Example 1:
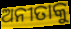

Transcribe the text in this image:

ଅନୀତାକୁ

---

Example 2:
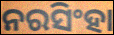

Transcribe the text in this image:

ନରସିଂହା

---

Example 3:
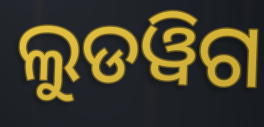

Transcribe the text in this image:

ଲୁଡୱିଗ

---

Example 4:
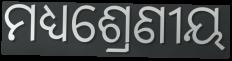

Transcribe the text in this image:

ମଧ୍ୟଶ୍ରେଣୀୟ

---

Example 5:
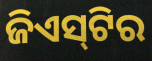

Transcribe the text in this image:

ଜିଏସ୍‌ଟିର